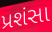
પ્રશંસા